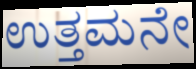
ಉತ್ತಮನೇ